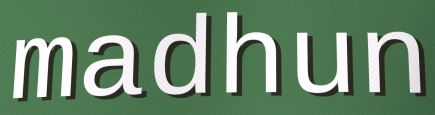
madhun